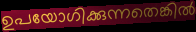
ഉപയോഗിക്കുന്നതെങ്കിൽ